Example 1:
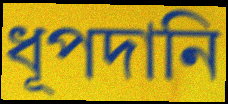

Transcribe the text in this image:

ধূপদানি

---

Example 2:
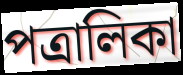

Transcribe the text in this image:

পত্রালিকা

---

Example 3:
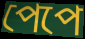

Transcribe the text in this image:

পেপে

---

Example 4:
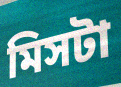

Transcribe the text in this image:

মিসটা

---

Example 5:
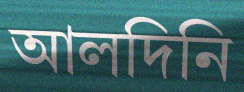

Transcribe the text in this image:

আলদিনি